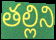
తల్లిని